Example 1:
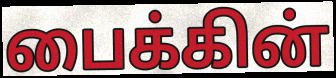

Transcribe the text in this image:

பைக்கின்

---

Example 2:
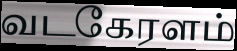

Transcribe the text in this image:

வடகேரளம்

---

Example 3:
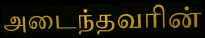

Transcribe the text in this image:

அடைந்தவரின்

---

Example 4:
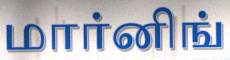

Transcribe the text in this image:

மார்னிங்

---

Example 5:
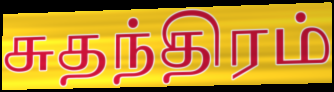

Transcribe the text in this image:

சுதந்திரம்